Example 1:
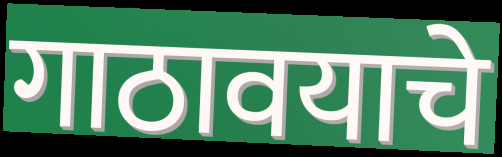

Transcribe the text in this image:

गाठावयाचे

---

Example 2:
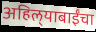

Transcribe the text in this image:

अहिल्याबाईंचा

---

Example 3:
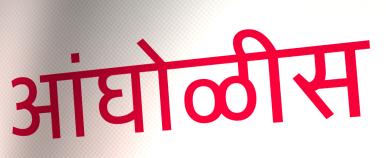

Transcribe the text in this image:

आंघोळीस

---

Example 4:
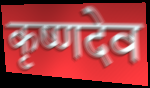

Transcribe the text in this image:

कृष्णदेव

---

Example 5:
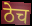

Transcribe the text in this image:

ठेच